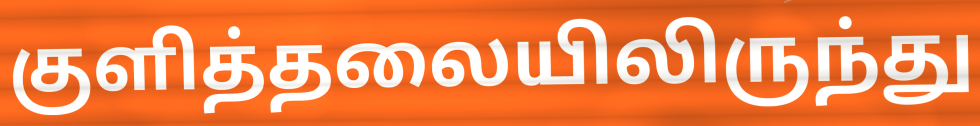
குளித்தலையிலிருந்து